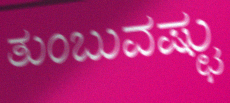
ತುಂಬುವಷ್ಟು